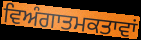
ਵਿਅੰਗਾਤਮਕਤਾਵਾਂ